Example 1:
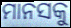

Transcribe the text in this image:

ମାନସକୁ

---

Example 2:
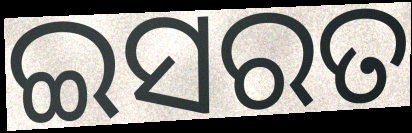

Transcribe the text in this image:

ଇସରତ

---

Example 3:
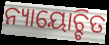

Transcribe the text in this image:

ନ୍ୟାୟୋଚ୍ଚିତ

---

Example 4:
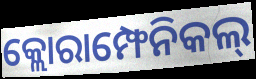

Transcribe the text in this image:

କ୍ଲୋରାମ୍ଫେନିକଲ୍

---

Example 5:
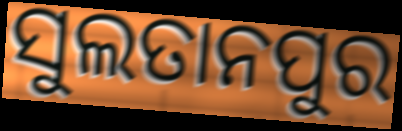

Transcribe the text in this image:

ସୁଲତାନପୁର